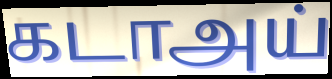
கடாஅய்